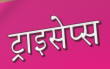
ट्राइसेप्स